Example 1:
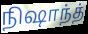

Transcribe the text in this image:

நிஷாந்த்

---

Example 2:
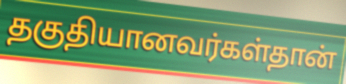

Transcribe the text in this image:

தகுதியானவர்கள்தான்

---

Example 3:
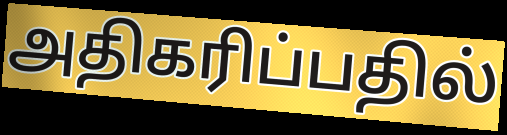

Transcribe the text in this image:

அதிகரிப்பதில்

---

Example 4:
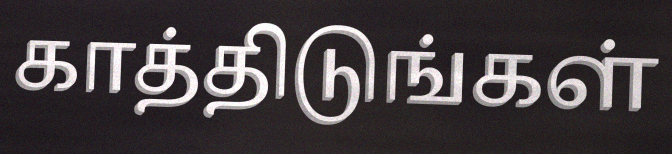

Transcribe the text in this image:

காத்திடுங்கள்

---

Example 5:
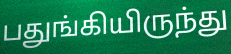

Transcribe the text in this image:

பதுங்கியிருந்து